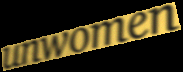
unwomen